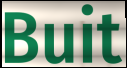
Buit